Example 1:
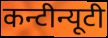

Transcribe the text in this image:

कन्टीन्यूटी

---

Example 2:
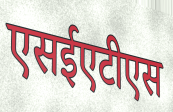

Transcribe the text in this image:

एसईएटीएस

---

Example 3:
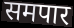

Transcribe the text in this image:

समपार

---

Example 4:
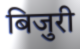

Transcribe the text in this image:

बिजुरी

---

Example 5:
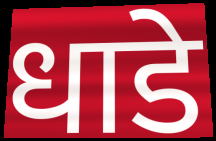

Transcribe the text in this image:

धाडे